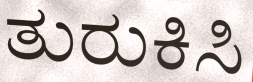
ತುರುಕಿಸಿ